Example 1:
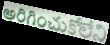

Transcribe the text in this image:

అరిగించుకోలేని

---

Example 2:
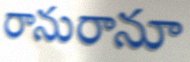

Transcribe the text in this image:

రానురానూ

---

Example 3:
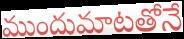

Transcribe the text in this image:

ముందుమాటతోనే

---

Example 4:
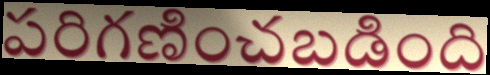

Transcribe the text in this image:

పరిగణించబడింది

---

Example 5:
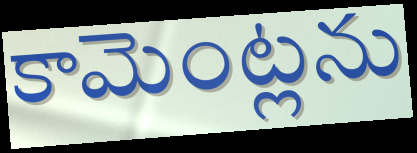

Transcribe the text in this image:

కామెంట్లను